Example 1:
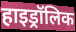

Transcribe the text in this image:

हाइड्रॉलिक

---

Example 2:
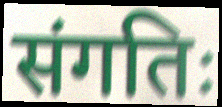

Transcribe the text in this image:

संगतिः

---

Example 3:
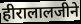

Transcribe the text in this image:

हीरालालजीने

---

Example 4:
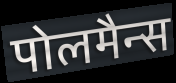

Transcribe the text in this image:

पोलमैन्स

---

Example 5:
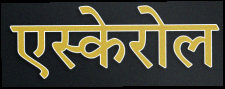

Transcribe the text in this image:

एस्केरोल